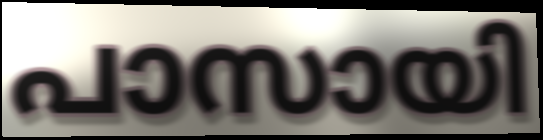
പാസായി